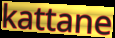
kattane